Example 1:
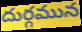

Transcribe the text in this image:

దుర్గమున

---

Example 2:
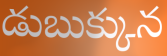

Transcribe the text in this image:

డుబుక్కున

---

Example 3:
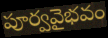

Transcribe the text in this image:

పూర్వవైభవం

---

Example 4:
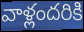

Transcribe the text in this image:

వాళ్లందరికి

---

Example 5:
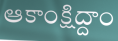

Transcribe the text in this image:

ఆకాంక్షిద్దాం